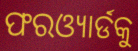
ଫରଓ୍ୟାର୍ଡକୁ